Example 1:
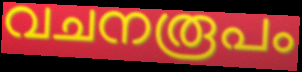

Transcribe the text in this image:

വചനരൂപം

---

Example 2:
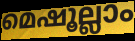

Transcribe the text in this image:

മെഷൂല്ലാം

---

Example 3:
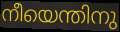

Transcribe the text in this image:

നീയെന്തിനു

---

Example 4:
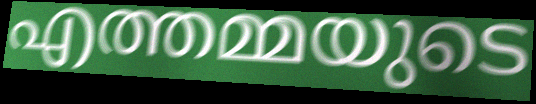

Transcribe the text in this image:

എത്തമ്മയുടെ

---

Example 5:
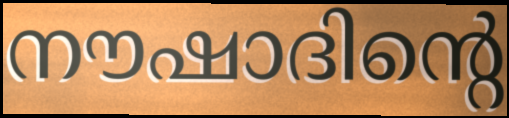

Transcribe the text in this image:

നൗഷാദിന്റെ